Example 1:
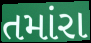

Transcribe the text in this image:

તમાંરા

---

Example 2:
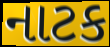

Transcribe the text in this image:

નાટક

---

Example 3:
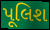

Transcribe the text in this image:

પૂલિશ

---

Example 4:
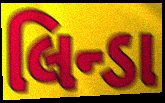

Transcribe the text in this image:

લિન્ડા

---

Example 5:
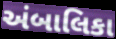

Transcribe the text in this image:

અંબાલિકા